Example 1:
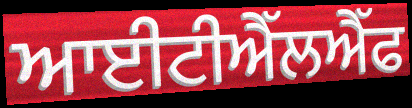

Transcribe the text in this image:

ਆਈਟੀਐੱਲਐੱਫ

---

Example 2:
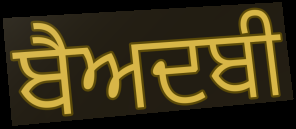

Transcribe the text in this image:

ਬੈਅਦਬੀ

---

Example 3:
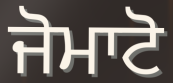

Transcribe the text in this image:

ਜੋਮਾਟੋ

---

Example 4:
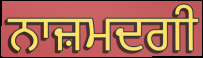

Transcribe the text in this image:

ਨਾਜ਼ਮਦਗੀ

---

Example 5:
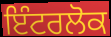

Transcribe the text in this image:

ਇੰਟਰਲੋਕ